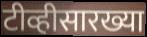
टीव्हीसारख्या